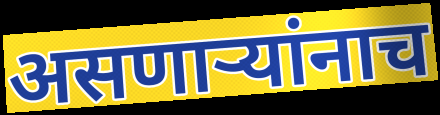
असणार्‍यांनाच